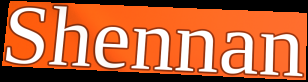
Shennan